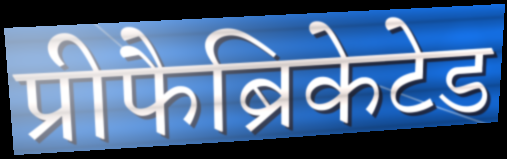
प्रीफैब्रिकेटेड